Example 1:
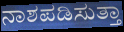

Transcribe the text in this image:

ನಾಶಪಡಿಸುತ್ತಾ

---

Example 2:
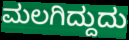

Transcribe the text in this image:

ಮಲಗಿದ್ದುದು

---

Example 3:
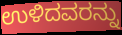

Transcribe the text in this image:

ಉಳಿದವರನ್ನು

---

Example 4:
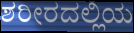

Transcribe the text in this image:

ಶರೀರದಲ್ಲಿಯ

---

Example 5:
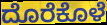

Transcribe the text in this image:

ದೊರೆಕೊಳೆ